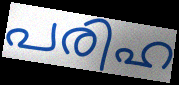
പരിഹ